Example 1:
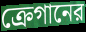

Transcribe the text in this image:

ক্রেগানের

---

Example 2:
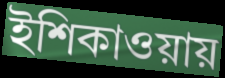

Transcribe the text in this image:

ইশিকাওয়ায়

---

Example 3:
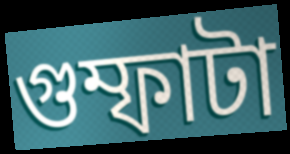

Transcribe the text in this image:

গুম্ফাটা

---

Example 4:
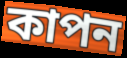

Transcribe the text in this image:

কাপন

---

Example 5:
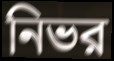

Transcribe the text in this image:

নিভর